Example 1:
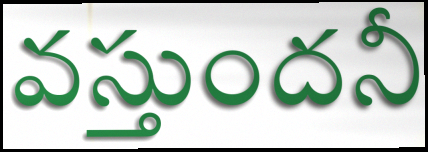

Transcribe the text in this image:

వస్తుందనీ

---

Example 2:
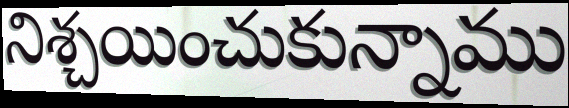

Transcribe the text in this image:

నిశ్చయించుకున్నాము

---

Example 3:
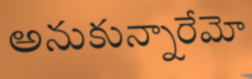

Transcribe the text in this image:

అనుకున్నారేమో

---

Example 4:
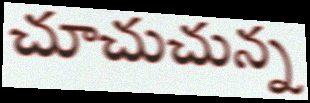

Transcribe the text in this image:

చూచుచున్న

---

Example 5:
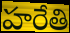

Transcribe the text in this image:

హరేతి